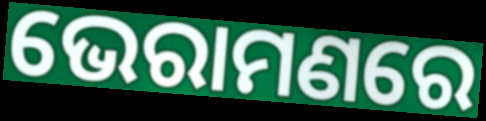
ଭେରାମଣରେ